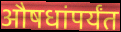
औषधांपर्यंत